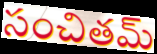
సంచితమ్